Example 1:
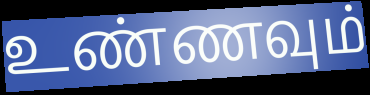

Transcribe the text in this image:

உண்ணவும்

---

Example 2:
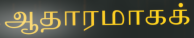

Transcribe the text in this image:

ஆதாரமாகக்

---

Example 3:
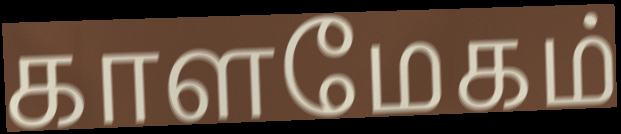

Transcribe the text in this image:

காளமேகம்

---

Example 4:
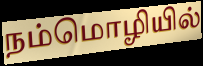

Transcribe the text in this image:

நம்மொழியில்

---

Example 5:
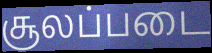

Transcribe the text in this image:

சூலப்படை